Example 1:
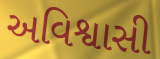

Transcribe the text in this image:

અવિશ્વાસી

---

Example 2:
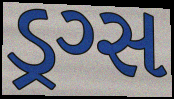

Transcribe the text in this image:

ડ્રગ્સ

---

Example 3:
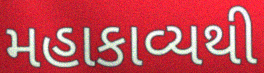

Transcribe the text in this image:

મહાકાવ્યથી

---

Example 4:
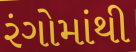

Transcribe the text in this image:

રંગોમાંથી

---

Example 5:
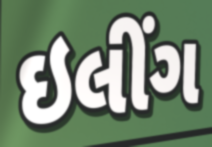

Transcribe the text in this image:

ઇલીંગ